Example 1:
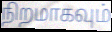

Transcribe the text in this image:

நிறமாகவும்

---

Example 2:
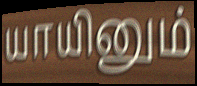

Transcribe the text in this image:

யாயினும்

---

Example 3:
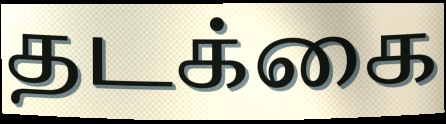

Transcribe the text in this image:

தடக்கை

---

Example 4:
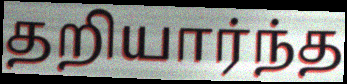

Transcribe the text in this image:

தறியார்ந்த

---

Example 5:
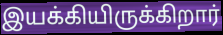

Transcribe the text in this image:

இயக்கியிருக்கிறார்